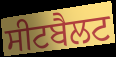
ਸੀਟਬੈਲਟ